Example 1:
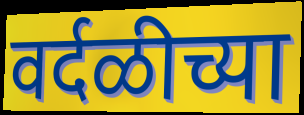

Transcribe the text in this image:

वर्दळीच्या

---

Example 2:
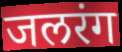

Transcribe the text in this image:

जलरंग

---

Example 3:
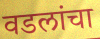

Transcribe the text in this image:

वडलांचा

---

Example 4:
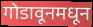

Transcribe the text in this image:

गोडावूनमधून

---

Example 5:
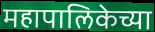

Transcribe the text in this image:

महापालिकेच्या